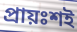
প্রায়ঃশই